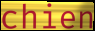
chien